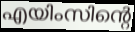
എയിംസിന്റെ